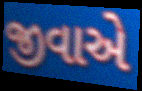
જીવાએ